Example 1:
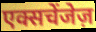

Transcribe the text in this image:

एक्सचेंजेज़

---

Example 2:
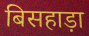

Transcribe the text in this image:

बिसहाड़ा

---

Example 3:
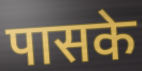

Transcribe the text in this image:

पासके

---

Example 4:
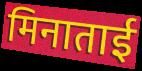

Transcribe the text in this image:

मिनाताई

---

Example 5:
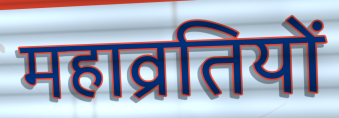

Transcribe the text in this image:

महाव्रतियों